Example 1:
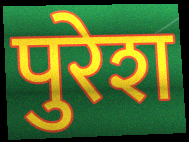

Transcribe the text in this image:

पुरेश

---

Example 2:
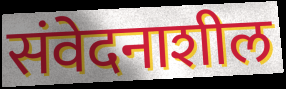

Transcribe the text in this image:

संवेदनाशील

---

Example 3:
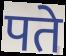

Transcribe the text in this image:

पते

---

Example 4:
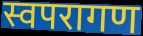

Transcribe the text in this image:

स्वपरागण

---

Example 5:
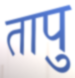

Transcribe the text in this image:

तापु